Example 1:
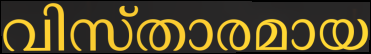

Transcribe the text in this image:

വിസ്താരമായ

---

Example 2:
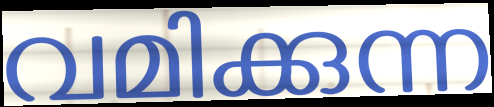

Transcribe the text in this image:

വമിക്കുന്ന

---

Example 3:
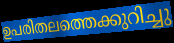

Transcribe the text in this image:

ഉപരിതലത്തെക്കുറിച്ചു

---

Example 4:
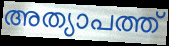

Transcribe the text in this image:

അത്യാപത്ത്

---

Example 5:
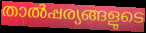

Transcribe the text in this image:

താൽപ്പര്യങ്ങളുടെ